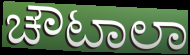
ಚೌಟಾಲಾ